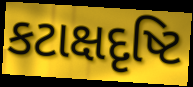
કટાક્ષદૃષ્ટિ